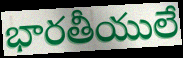
భారతీయులే